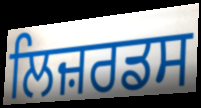
ਲਿਜ਼ਰਡਸ